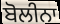
ਬੋਲੀਨਾ